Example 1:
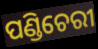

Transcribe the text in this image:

ପଣ୍ଡିଚେରୀ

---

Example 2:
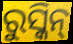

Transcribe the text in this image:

ରୁସ୍କିନ୍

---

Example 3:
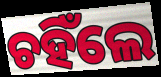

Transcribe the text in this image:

ଚହିଁଲେ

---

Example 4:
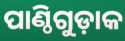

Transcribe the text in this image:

ପାଣ୍ଠିଗୁଡ଼ାକ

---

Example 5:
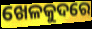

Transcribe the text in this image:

ଖେଳକୁଦରେ